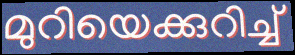
മുറിയെക്കുറിച്ച്